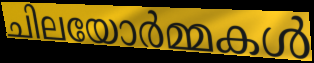
ചിലയോർമ്മകൾ